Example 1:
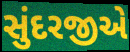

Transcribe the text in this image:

સુંદરજીએ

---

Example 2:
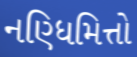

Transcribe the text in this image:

નણ્ધિમિત્તો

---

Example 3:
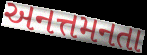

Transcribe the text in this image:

અનત્તમનતા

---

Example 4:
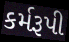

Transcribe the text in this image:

કર્મરૂપી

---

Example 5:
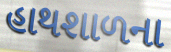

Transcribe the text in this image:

હાથશાળના